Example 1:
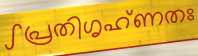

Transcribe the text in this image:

ഽപ്രതിഗൃഹ്ണതഃ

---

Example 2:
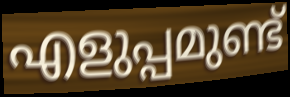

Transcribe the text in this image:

എളുപ്പമുണ്ട്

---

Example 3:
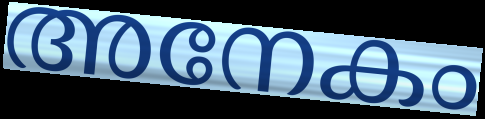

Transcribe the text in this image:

അനേകം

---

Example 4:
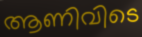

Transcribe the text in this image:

ആണിവിടെ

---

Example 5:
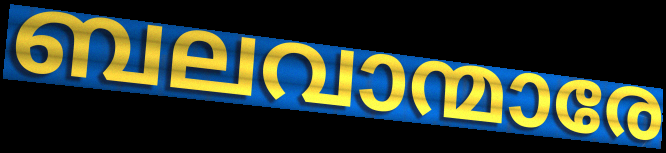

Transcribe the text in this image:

ബലവാന്മാരേ